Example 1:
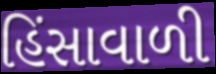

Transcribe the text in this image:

હિંસાવાળી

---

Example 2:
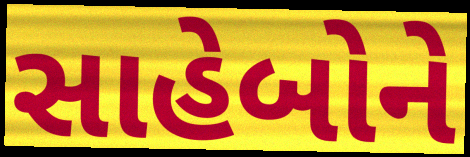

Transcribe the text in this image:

સાહેબોને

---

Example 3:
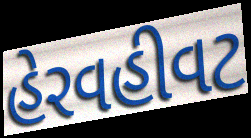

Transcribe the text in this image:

હેરવહીવટ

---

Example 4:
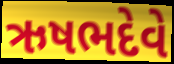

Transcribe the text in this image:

ઋષભદેવે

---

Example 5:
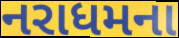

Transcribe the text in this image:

નરાધમના